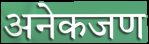
अनेकजण